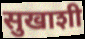
सुखाशी